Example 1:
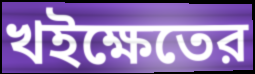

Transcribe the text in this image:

খইক্ষেতের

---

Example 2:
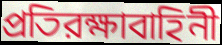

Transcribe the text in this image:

প্রতিরক্ষাবাহিনী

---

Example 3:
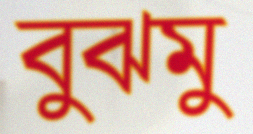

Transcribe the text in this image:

বুঝমু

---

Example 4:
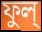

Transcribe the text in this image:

ফুল্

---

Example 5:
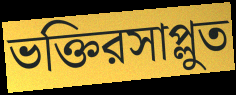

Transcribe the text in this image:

ভক্তিরসাপ্লুত